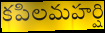
కపిలమహర్షి